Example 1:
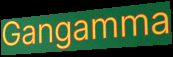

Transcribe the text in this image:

Gangamma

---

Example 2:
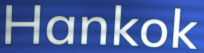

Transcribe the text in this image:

Hankok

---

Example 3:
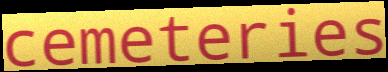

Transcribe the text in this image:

cemeteries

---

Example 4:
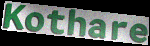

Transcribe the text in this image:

Kothare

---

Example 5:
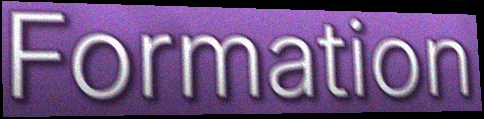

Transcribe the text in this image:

Formation